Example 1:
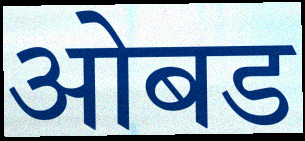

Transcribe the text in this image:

ओबड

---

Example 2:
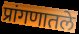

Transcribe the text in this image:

प्रांगणातले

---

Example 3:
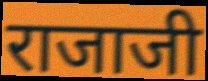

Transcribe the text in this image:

राजाजी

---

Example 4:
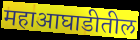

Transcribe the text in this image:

महाआघाडीतील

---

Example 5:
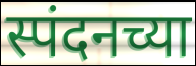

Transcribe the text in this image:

स्पंदनच्या